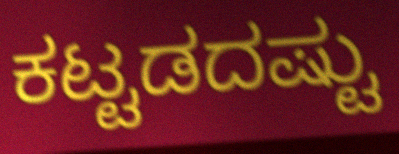
ಕಟ್ಟಡದಷ್ಟು